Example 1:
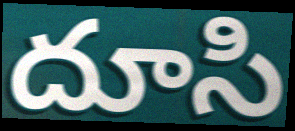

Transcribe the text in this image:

దూసి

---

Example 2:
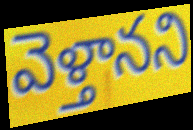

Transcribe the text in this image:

వెళ్తానని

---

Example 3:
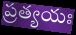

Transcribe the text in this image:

ప్రత్యయః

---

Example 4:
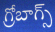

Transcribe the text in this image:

గ్రోబాగ్స్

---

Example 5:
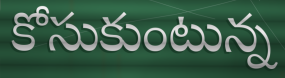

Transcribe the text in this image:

కోసుకుంటున్న